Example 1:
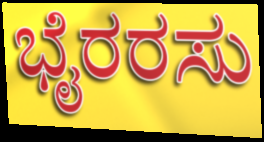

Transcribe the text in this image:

ಭೈರರಸು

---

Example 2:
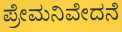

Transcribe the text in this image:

ಪ್ರೇಮನಿವೇದನೆ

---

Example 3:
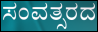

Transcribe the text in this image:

ಸಂವತ್ಸರದ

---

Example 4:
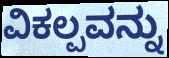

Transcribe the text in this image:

ವಿಕಲ್ಪವನ್ನು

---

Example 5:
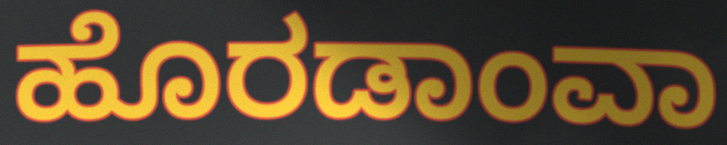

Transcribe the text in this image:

ಹೊರಡಾಂವಾ